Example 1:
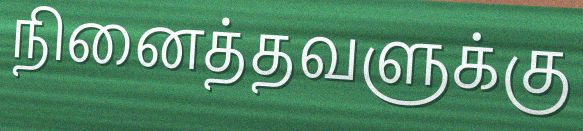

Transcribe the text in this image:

நினைத்தவளுக்கு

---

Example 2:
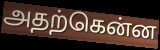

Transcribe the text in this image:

அதற்கென்ன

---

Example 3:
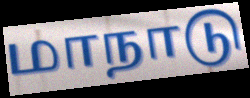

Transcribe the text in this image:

மாநாடு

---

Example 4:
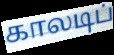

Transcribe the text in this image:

காலடிப்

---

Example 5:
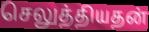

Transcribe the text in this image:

செலுத்தியதன்